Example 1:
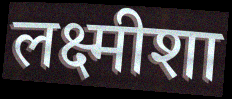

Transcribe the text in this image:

लक्ष्मीशा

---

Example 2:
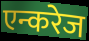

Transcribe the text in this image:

एन्करेज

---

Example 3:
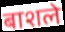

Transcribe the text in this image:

बाशले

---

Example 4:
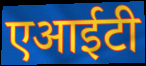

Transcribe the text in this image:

एआईटी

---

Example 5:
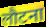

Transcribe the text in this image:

लौटना